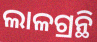
ଲାଳଗ୍ରନ୍ଥି